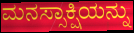
ಮನಸ್ಸಾಕ್ಷಿಯನ್ನು